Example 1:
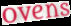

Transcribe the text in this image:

ovens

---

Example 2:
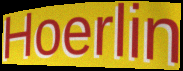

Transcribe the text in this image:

Hoerlin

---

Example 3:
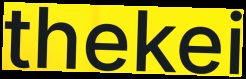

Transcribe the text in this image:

thekei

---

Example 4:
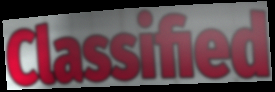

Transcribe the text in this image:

Classified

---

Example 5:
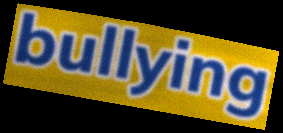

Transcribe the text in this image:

bullying